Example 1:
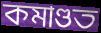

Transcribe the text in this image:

কমাণ্ডত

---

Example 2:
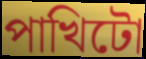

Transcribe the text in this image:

পাখিটো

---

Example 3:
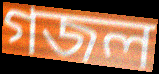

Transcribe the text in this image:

গজল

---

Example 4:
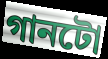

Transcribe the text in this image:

গানটো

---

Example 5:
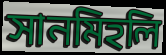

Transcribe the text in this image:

সানমিহলি